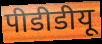
पीडीडीयू